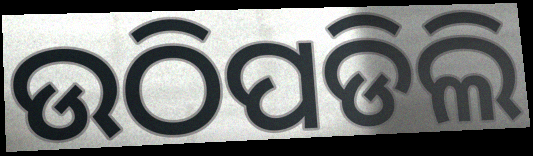
ଉଠିପଡିଲି